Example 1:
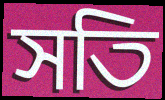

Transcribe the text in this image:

সতি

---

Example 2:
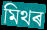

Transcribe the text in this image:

মিথৰ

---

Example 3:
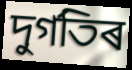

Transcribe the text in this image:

দুৰ্গতিৰ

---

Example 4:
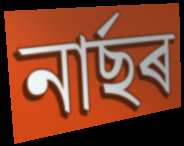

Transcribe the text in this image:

নাৰ্ছৰ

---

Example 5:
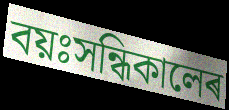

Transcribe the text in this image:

বয়ঃসন্ধিকালেৰ